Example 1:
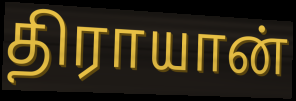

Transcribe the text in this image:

திராயான்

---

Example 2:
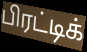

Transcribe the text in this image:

பிரட்டிக்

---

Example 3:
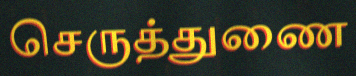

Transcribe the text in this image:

செருத்துணை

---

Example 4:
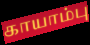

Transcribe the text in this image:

காயாம்பு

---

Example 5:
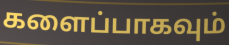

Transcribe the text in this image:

களைப்பாகவும்